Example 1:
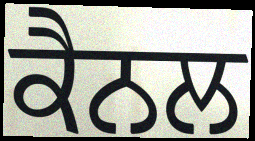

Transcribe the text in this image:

ਕੈਨਲ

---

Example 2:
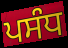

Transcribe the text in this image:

ਪਸੰਧ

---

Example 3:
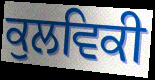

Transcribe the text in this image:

ਕੁਲਵਿਕੀ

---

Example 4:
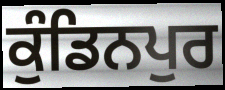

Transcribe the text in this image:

ਕੁੰਡਿਨਪੁਰ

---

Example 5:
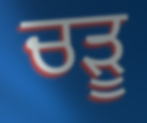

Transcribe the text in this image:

ਚੜੂ